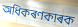
অধিকৰণকাৰক